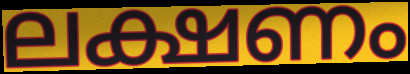
ലക്ഷണം